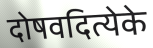
दोषवदित्येके